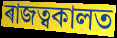
ৰাজত্বকালত